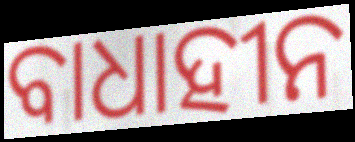
ବାଧାହୀନ